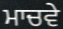
ਮਾਚਵੇ